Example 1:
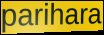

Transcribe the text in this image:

parihara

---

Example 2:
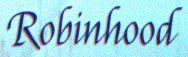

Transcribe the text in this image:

Robinhood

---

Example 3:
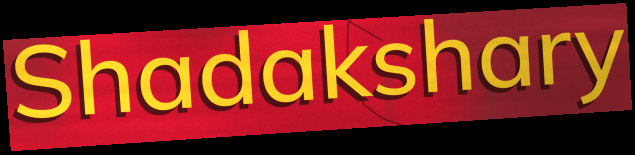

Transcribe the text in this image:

Shadakshary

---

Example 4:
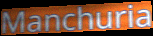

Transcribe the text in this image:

Manchuria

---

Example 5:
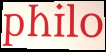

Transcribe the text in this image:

philo